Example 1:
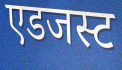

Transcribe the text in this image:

एडजस्ट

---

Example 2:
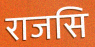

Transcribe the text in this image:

राजसि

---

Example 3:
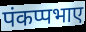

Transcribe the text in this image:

पंकप्पभाए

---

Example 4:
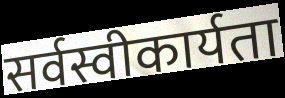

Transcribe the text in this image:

सर्वस्वीकार्यता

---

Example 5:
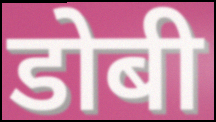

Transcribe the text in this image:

डोबी